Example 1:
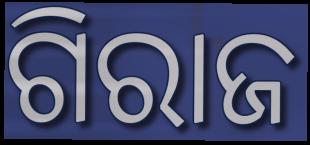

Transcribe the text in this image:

ଗିରାଜ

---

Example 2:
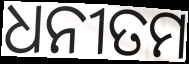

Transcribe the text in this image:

ଧନୀତମ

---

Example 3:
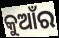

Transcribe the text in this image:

କୁଆଁର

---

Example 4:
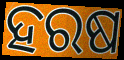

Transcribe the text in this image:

ହରଷ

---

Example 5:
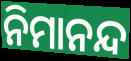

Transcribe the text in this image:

ନିମାନନ୍ଦ